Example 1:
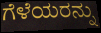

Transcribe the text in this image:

ಗೆಳೆಯರನ್ನು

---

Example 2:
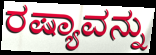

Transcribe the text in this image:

ರಷ್ಯಾವನ್ನು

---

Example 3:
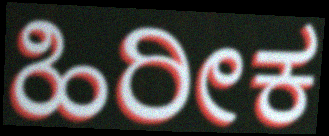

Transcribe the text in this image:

ಹಿರೀಕ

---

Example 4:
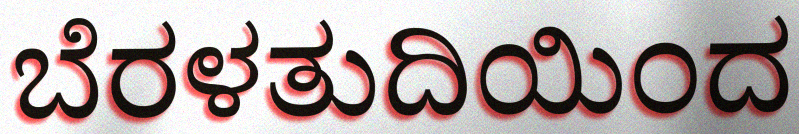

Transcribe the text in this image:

ಬೆರಳತುದಿಯಿಂದ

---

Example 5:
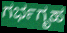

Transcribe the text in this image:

ಗರ್ಭಗೃಹ